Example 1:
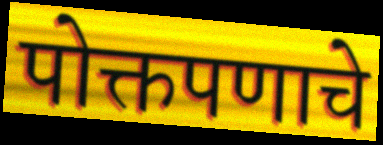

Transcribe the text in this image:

पोक्तपणाचे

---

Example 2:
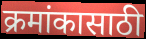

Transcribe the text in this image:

क्रमांकासाठी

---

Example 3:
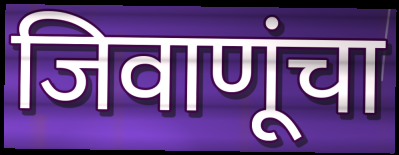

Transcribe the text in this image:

जिवाणूंचा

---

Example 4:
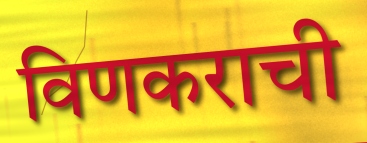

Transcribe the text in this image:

विणकराची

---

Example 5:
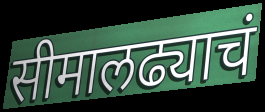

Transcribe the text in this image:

सीमालढ्याचं